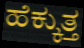
ಹೆಕ್ಕುತ್ತ